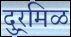
दुर्मिळ